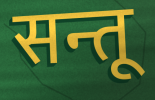
सन्तू